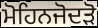
ਮੋਹਿਨਜੋਦੜੋ